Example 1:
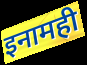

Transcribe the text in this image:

इनामही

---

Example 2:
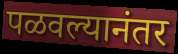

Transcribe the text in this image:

पळवल्यानंतर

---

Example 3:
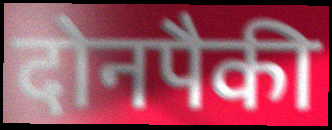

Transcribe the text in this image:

दोनपैकी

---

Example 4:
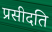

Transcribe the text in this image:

प्रसीदति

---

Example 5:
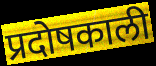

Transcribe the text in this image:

प्रदोषकाली